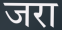
जरा